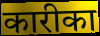
कारीका